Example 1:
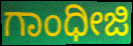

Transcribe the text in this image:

ಗಾಂಧೀಜಿ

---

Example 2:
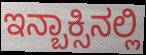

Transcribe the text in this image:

ಇನ್ಬಾಕ್ಸಿನಲ್ಲಿ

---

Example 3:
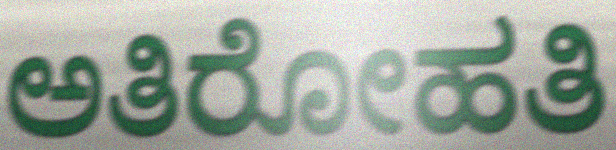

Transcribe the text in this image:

ಅತಿರೋಹತಿ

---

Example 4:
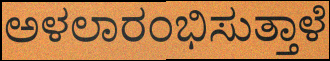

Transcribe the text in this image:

ಅಳಲಾರಂಭಿಸುತ್ತಾಳೆ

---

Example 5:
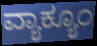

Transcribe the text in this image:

ವ್ಯಾಕ್ಯೂಂ